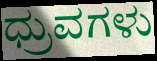
ಧ್ರುವಗಳು